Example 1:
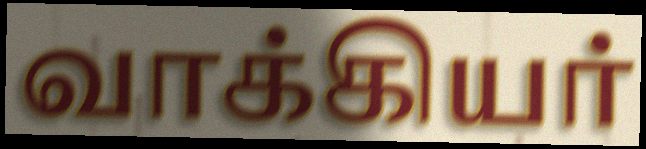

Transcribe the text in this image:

வாக்கியர்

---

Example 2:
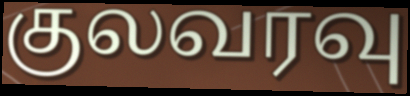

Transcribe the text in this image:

குலவரவு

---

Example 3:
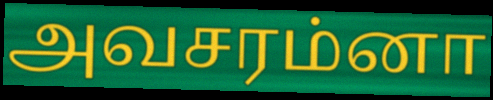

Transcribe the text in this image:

அவசரம்னா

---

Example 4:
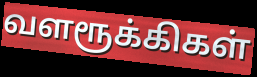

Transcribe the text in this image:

வளரூக்கிகள்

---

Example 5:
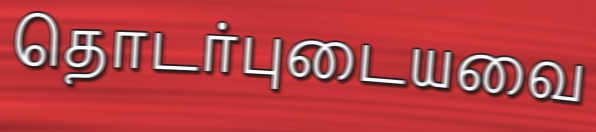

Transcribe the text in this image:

தொடர்புடையவை